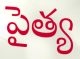
పైత్య